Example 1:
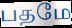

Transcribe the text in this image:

பதமே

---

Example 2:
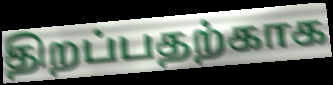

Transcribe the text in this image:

திறப்பதற்காக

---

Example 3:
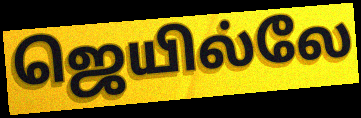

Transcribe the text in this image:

ஜெயில்லே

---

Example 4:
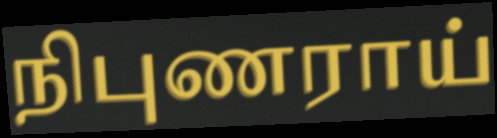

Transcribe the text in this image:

நிபுணராய்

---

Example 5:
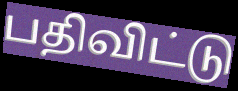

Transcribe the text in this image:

பதிவிட்டு